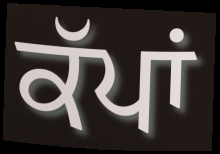
ਕੱਪਾਂ